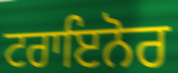
ਟਰਾਇਨੋਰ